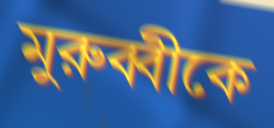
মুরুব্বীকে